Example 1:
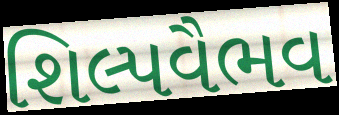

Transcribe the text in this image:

શિલ્પવૈભવ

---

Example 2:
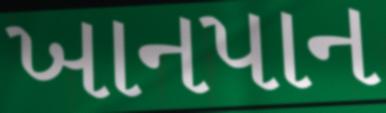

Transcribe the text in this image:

ખાનપાન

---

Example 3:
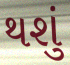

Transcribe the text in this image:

થશું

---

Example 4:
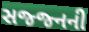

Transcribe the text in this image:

સજ્જ્નની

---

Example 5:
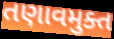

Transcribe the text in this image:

તણાવમુક્ત